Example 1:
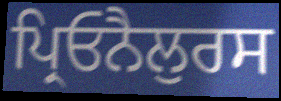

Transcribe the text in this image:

ਪ੍ਰਿਓਨੈਲੁਰਸ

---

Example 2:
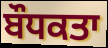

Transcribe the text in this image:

ਬੌਧਕਤਾ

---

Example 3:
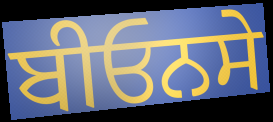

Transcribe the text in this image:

ਬੀਓਨਸੇ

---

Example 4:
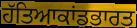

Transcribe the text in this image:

ਹੱਤਿਆਕਾਂਡਭਾਰਤ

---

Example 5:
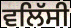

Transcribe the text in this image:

ਵਲਿੱਸੀ